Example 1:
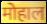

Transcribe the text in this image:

मोहाल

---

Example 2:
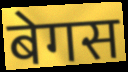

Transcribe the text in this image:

बेगस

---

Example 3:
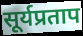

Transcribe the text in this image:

सूर्यप्रताप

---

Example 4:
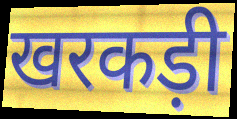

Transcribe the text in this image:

खरकड़ी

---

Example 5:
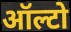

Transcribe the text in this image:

ऑल्टो